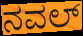
ನವಲ್